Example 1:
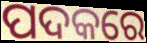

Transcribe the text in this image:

ପଦକରେ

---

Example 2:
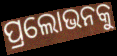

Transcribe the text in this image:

ପ୍ରଲୋଭନକୁ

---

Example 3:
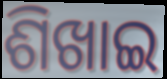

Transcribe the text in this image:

ଶିଖାଇ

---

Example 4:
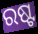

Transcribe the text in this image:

ରଷ୍ଟ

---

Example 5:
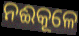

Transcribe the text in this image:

ନଈକୂଳେ